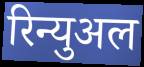
रिन्युअल